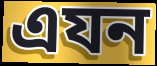
এযন